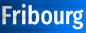
Fribourg